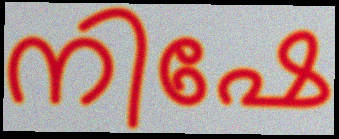
നിഷേ